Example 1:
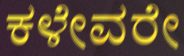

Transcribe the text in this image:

ಕಳೇವರೇ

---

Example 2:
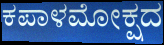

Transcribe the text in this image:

ಕಪಾಳಮೋಕ್ಷದ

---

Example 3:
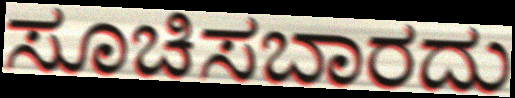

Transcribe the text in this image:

ಸೂಚಿಸಬಾರದು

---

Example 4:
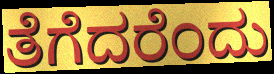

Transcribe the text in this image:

ತೆಗೆದರೆಂದು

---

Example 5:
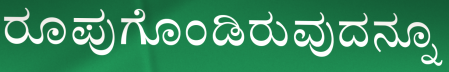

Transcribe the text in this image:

ರೂಪುಗೊಂಡಿರುವುದನ್ನೂ